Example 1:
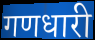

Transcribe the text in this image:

गणधारी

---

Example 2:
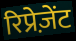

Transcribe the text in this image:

रिप्रेज़ेंट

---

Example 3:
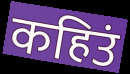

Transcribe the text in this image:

कहिउं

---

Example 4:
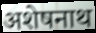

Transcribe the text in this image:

अशेषनाथ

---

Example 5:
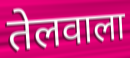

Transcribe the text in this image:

तेलवाला